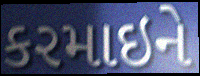
કરમાઇને